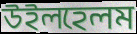
উইলহেলম